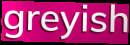
greyish